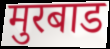
मुरबाड